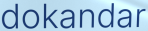
dokandar